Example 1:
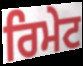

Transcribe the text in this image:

ਰਿਮੇਟ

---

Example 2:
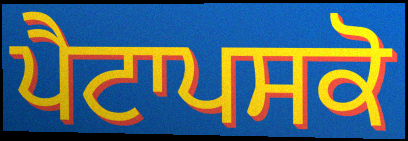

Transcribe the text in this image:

ਪੈਟਾਪਸਕੋ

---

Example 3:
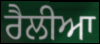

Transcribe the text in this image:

ਰੈਲੀਆ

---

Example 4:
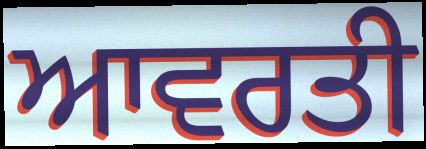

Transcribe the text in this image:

ਆਵਰਤੀ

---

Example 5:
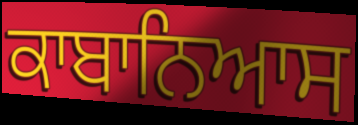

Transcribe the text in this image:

ਕਾਬਾਨਿਆਸ